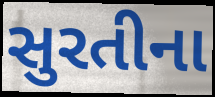
સુરતીના